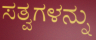
ಸತ್ವಗಳನ್ನು